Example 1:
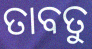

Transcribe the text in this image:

ତାବତୁ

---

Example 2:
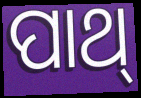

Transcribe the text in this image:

ପାଥ୍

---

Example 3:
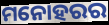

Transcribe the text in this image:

ମନୋହରର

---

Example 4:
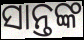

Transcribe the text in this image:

ସାନ୍ତଙ୍କ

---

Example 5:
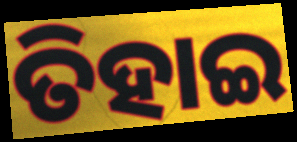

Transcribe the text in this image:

ତିହାଇ